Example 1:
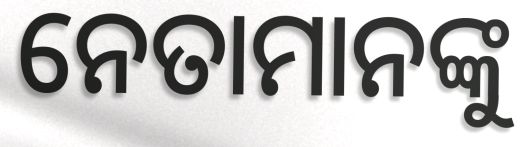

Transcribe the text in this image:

ନେତାମାନଙ୍କୁ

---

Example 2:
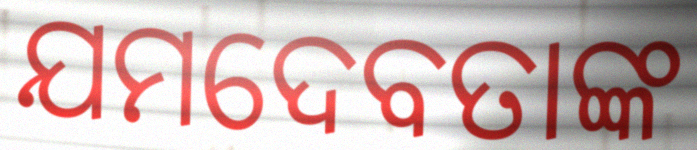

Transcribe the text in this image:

ଯମଦେବତାଙ୍କ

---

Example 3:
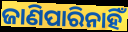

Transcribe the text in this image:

ଜାଣିପାରିନାହିଁ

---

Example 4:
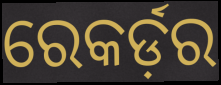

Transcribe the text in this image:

ରେକର୍ଡ଼ର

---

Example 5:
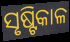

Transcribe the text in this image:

ସୃଷ୍ଟିକାଳ